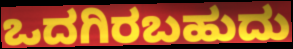
ಒದಗಿರಬಹುದು